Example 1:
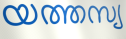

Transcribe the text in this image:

യത്തസ്യ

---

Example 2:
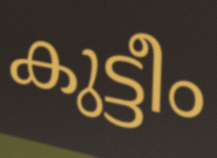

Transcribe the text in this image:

കുട്ടീം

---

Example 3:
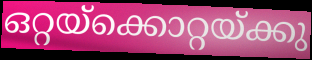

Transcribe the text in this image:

ഒറ്റയ്ക്കൊറ്റയ്ക്കു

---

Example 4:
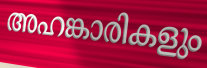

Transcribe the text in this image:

അഹങ്കാരികളും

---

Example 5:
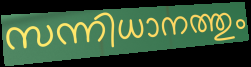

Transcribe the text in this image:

സന്നിധാനത്തും